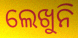
ଲେଖୁନି